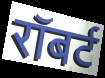
रॉबर्ट